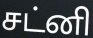
சட்னி